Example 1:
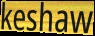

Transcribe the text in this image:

keshaw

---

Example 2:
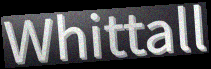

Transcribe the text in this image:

Whittall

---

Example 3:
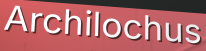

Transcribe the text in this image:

Archilochus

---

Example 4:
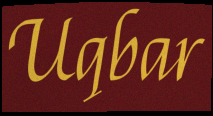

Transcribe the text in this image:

Uqbar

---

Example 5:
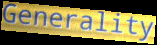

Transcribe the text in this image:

Generality